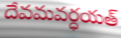
దేవమవర్ధయత్